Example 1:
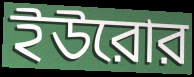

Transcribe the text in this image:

ইউরোর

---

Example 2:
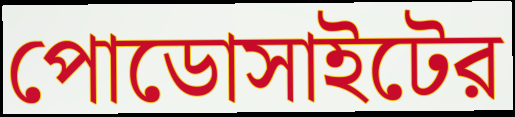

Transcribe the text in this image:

পোডোসাইটের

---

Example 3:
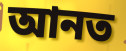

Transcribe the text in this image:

আনত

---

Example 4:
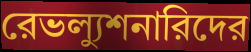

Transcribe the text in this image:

রেভল্যুশনারিদের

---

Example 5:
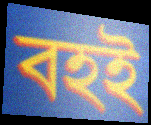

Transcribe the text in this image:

বহই